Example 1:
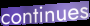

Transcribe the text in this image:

continues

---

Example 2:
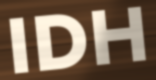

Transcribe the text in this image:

IDH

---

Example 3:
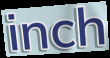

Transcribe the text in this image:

inch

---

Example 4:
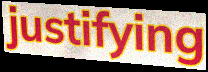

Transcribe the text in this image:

justifying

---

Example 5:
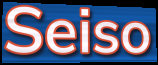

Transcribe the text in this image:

Seiso